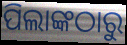
ପିଲାଙ୍କଠାରୁ